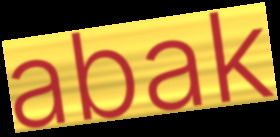
abak